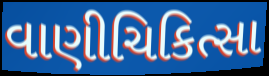
વાણીચિકિત્સા